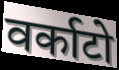
वर्काटो